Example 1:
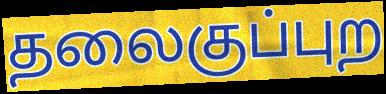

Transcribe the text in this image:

தலைகுப்புற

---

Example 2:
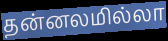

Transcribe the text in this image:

தன்னலமில்லா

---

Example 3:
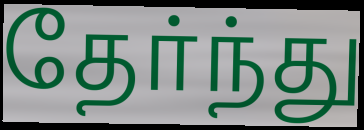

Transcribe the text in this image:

தேர்ந்து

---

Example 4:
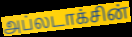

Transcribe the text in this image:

அப்லடாக்சின்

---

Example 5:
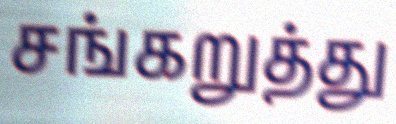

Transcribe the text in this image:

சங்கறுத்து